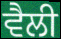
ਵੈਲੀ